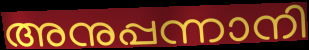
അനുപ്പന്നാനി